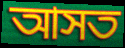
আসত